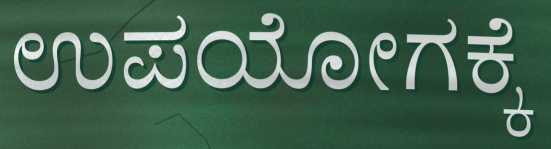
ಉಪಯೋಗಕ್ಕೆ